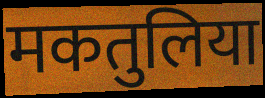
मकतुलिया